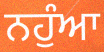
ਨਹੁੰਆ